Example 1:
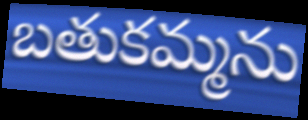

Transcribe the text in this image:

బతుకమ్మను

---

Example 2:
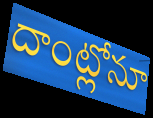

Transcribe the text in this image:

దాంట్లోనూ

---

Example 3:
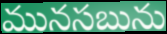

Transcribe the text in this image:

మునసబును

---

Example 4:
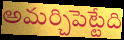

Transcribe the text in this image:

అమర్చిపెట్టేది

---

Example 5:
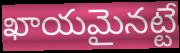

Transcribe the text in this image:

ఖాయమైనట్టే